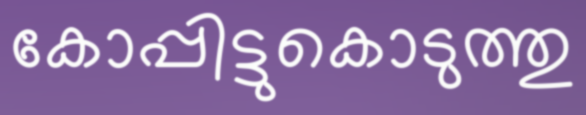
കോപ്പിട്ടുകൊടുത്തു